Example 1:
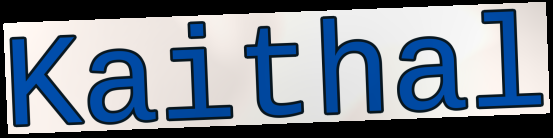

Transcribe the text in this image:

Kaithal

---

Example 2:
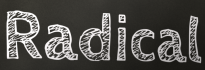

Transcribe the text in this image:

Radical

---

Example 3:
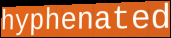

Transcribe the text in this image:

hyphenated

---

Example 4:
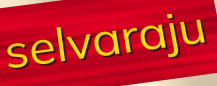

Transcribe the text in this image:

selvaraju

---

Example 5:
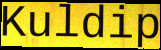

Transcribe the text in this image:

Kuldip